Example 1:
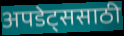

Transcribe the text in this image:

अपडेट्ससाठी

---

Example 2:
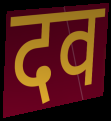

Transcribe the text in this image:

दव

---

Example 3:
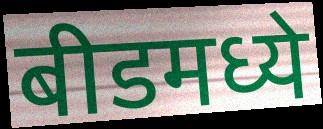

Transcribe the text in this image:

बीडमध्ये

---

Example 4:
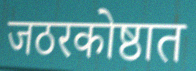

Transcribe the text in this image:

जठरकोष्ठात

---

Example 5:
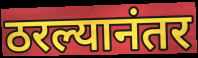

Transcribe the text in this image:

ठरल्यानंतर